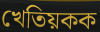
খেতিয়কক